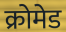
क्रोमेड